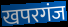
खपरगंज